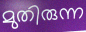
മുതിരുന്ന